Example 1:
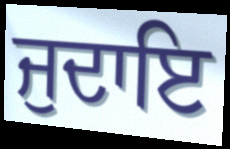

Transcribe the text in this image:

ਜੁਦਾਇ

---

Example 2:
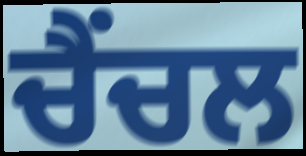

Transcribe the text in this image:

ਚੈਂਚਲ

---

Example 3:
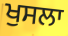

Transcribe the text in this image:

ਖੁਸਲਾ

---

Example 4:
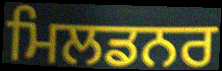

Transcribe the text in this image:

ਮਿਲਡਨਰ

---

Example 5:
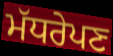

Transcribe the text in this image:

ਮੱਧਰੇਪਣ